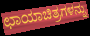
ಛಾಯಾಚಿತ್ರಗಳನ್ನು